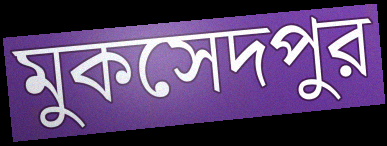
মুকসেদপুর